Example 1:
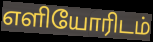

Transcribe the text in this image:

எளியோரிடம்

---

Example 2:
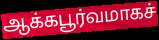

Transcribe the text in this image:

ஆக்கபூர்வமாகச்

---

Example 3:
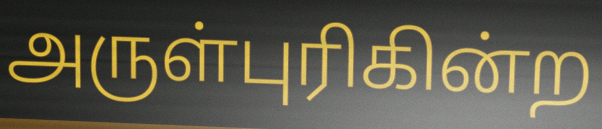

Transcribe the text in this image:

அருள்புரிகின்ற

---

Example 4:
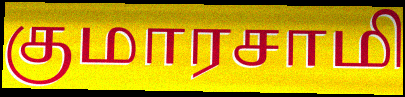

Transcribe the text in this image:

குமாரசாமி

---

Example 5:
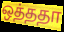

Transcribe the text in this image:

ஒத்ததா